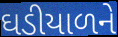
ઘડીયાળને